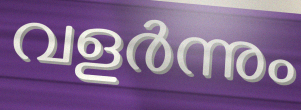
വളർന്നും